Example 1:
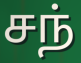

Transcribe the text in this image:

சந்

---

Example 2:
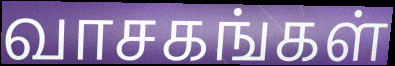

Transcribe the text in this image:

வாசகங்கள்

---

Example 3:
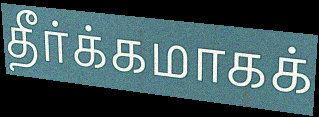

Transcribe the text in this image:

தீர்க்கமாகக்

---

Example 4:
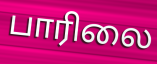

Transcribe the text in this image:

பாரிலை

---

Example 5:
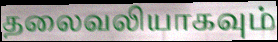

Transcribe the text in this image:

தலைவலியாகவும்